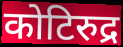
कोटिरुद्र